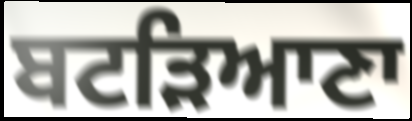
ਬਟੜਿਆਣਾ